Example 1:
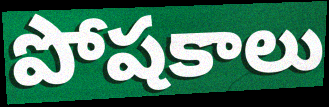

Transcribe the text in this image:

పోషకాలు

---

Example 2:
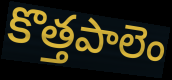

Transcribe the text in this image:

కొత్తపాలెం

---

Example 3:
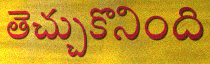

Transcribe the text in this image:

తెచ్చుకొనింది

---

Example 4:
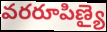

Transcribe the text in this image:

వరరూపిణ్యై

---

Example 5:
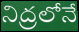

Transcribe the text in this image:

నిద్రలోనే